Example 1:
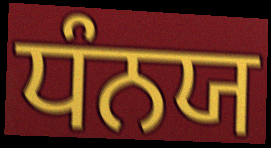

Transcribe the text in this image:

ਧੰਨਯ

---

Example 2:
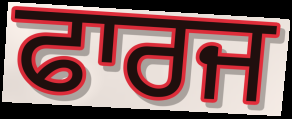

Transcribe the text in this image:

ਫਾਰਜ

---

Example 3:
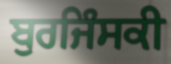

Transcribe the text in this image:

ਬੁਰਜਿੰਸਕੀ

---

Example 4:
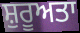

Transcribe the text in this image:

ਸ਼ੁਰੂਅਤਾ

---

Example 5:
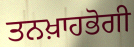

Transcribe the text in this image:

ਤਨਖ਼ਾਹਭੋਗੀ